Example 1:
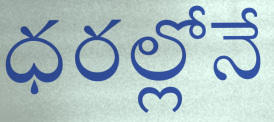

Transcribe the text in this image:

ధరల్లోనే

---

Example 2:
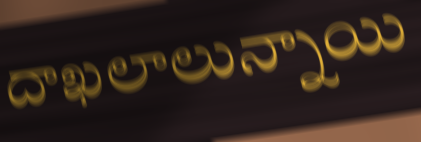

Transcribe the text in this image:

దాఖలాలున్నాయి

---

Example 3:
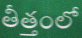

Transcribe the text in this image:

తీత్తంలో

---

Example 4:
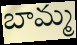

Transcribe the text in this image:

బామ్మ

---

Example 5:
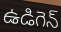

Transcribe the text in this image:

ఉడిగెన్